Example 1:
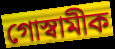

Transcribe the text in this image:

গোস্বামীক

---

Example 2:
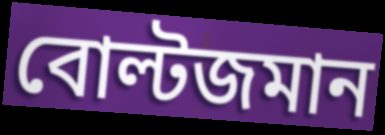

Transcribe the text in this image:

বোল্টজমান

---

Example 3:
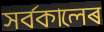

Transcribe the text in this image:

সৰ্বকালেৰ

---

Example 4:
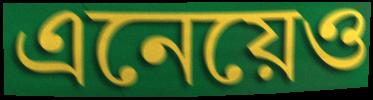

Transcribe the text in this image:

এনেয়েও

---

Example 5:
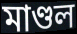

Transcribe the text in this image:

মাণ্ডল